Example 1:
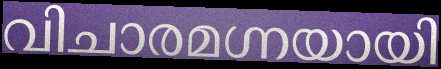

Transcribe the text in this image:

വിചാരമഗ്നയായി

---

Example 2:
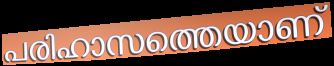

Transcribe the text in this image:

പരിഹാസത്തെയാണ്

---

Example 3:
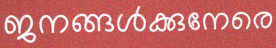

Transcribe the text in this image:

ജനങ്ങൾക്കുനേരെ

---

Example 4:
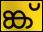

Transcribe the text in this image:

ങ്ക്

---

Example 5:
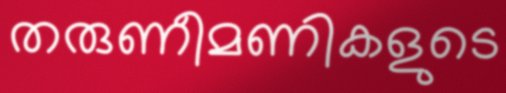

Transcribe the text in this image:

തരുണീമണികളുടെ